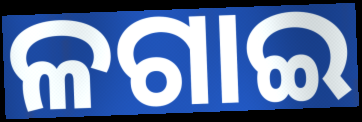
ଳଗାଇ